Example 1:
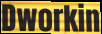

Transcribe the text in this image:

Dworkin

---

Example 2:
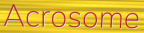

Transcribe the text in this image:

Acrosome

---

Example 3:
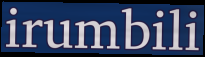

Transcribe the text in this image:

irumbili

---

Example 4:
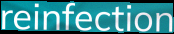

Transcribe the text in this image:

reinfection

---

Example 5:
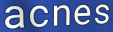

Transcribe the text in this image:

acnes